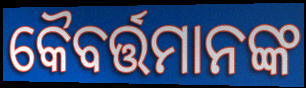
କୈବର୍ତ୍ତମାନଙ୍କ